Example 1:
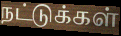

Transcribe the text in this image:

நட்டுக்கள்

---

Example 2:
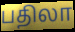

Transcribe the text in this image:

பதிலா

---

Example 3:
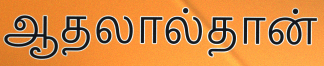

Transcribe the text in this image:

ஆதலால்தான்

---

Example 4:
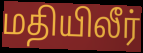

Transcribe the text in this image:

மதியிலீர்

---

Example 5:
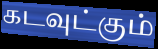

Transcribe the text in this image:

கடவுட்கும்